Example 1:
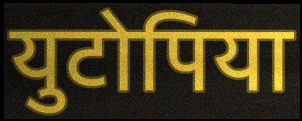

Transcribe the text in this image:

युटोपिया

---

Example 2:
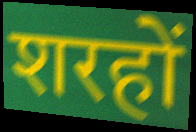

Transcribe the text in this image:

शरहों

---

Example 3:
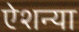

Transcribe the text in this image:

ऐशन्या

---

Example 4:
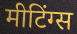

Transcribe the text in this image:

मीटिंग्स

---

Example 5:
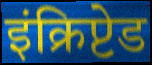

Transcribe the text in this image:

इंक्रिप्टेड